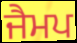
ਜੈਮਪ